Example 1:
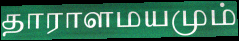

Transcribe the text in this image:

தாராளமயமும்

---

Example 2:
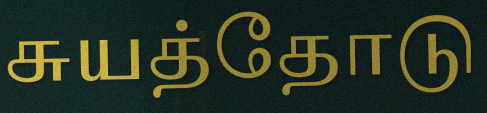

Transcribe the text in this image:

சுயத்தோடு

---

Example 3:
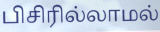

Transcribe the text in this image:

பிசிரில்லாமல்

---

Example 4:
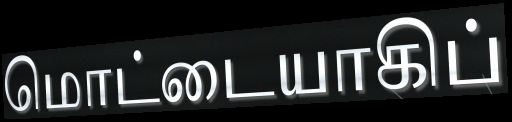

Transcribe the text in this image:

மொட்டையாகிப்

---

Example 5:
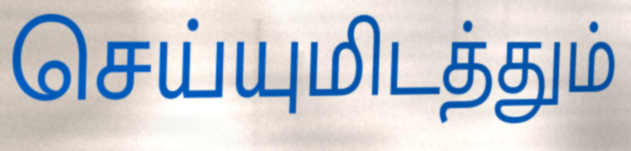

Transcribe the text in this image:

செய்யுமிடத்தும்